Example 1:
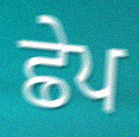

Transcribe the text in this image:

ਛੇਪ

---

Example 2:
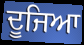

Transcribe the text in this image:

ਦੂਜਿਆ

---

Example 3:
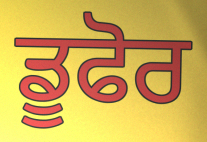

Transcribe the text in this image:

ਡੂਫੋਰ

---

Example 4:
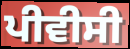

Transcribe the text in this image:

ਪੀਵੀਸੀ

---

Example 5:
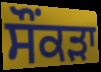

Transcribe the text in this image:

ਸੌਂਕੜਾ